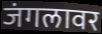
जंगलावर